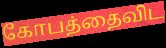
கோபத்தைவிட